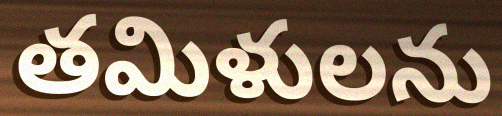
తమిళులను